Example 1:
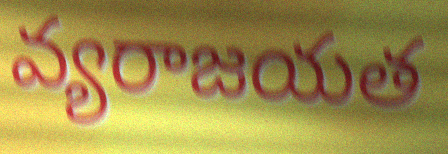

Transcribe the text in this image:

వ్యరాజయత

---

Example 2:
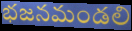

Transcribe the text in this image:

భజనమండలి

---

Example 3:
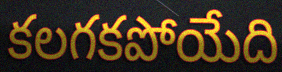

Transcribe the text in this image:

కలగకపోయేది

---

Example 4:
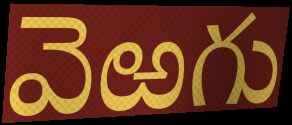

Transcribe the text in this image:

వెఱగు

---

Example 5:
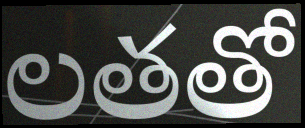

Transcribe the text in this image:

లతతో